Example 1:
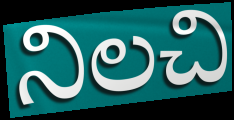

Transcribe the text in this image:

నిలచి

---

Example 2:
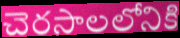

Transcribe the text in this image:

చెరసాలలోనికి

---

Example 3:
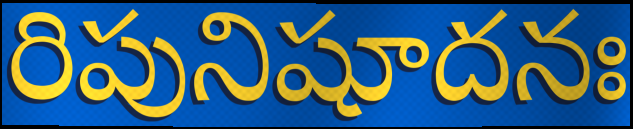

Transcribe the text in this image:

రిపునిషూదనః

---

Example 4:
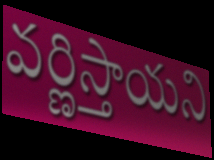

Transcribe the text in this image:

వర్ణిస్తాయని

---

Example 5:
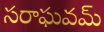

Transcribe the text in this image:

సరాఘవమ్